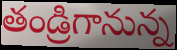
తండ్రిగానున్న